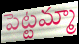
పెట్టమ్మా